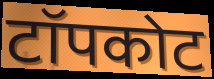
टॉपकोट